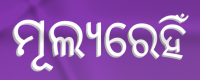
ମୂଲ୍ୟରେହିଁ